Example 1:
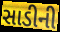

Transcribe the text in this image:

સાડીની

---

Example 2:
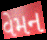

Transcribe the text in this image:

વેમન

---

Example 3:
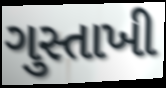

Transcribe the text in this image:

ગુસ્તાખી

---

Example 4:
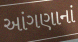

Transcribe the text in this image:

આંગણાનાં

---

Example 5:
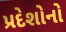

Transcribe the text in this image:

પ્રદેશોનો